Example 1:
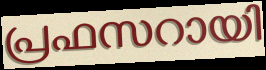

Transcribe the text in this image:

പ്രഫസറായി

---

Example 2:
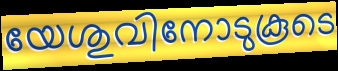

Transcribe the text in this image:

യേശുവിനോടുകൂടെ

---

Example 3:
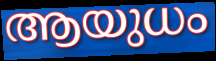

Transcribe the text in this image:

ആയുധം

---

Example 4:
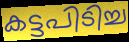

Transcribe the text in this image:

കട്ടപിടിച്ച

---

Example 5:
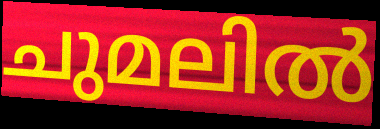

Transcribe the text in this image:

ചുമലിൽ